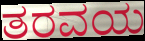
ತರವಯ